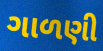
ગાળણી